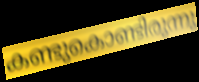
കണ്ടുകൊണ്ടിരുന്നു